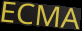
ECMA